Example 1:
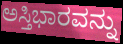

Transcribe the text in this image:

ಅಸ್ತಿಭಾರವನ್ನು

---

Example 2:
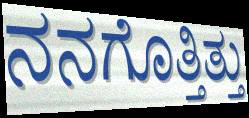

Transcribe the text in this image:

ನನಗೊತ್ತಿತ್ತು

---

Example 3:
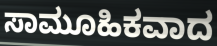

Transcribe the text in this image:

ಸಾಮೂಹಿಕವಾದ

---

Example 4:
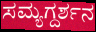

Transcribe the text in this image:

ಸಮ್ಯಗ್ದರ್ಶನ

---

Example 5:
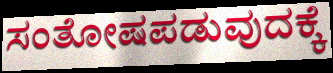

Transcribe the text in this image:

ಸಂತೋಷಪಡುವುದಕ್ಕೆ